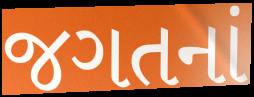
જગતનાં